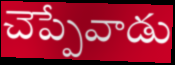
చెప్పేవాడు